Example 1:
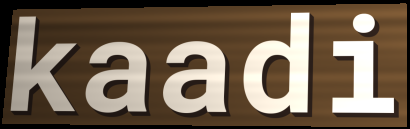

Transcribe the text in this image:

kaadi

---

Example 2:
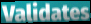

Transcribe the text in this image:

Validates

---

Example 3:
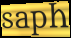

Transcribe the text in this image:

saph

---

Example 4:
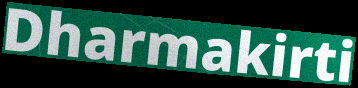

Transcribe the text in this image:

Dharmakirti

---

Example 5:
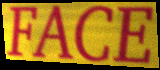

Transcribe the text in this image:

FACE